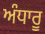
ਅੰਧਾਰੂ